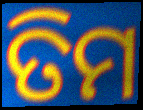
ତିମ